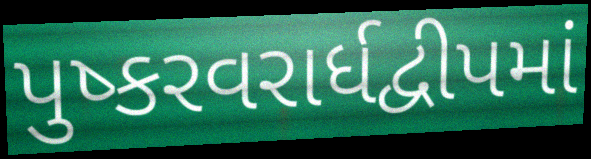
પુષ્કરવરાર્ધદ્વીપમાં